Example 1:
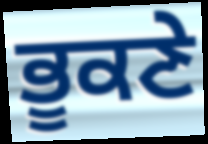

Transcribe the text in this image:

ਭੂਕਣੇ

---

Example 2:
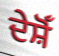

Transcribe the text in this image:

ਦੇਸ਼ੋਁ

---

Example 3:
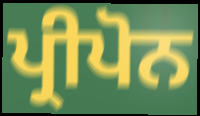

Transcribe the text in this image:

ਪ੍ਰੀਪੋਨ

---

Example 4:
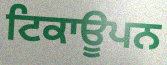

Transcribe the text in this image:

ਟਿਕਾਊਪਨ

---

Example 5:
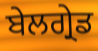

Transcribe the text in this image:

ਬੇਲਗ੍ਰੇਡ